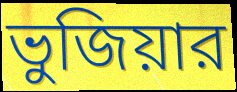
ভুজিয়ার